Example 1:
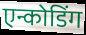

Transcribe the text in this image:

एन्कोडिंग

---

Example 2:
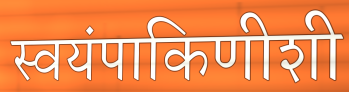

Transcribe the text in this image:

स्वयंपाकिणीशी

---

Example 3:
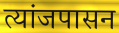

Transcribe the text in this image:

त्यांजपासन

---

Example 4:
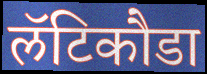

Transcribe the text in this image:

लॅटिकौडा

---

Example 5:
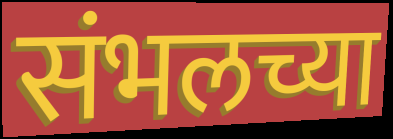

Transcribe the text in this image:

संभलच्या